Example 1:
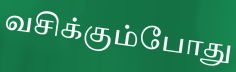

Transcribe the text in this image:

வசிக்கும்போது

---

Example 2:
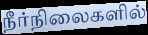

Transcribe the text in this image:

நீர்நிலைகளில்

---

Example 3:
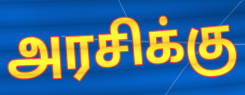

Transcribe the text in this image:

அரசிக்கு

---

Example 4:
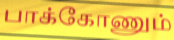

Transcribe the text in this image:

பாக்கோணும்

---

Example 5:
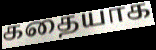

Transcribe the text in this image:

கதையாக